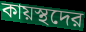
কায়স্থদের